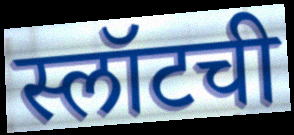
स्लॉटची